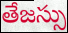
తేజస్సు